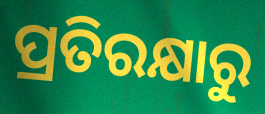
ପ୍ରତିରକ୍ଷାରୁ